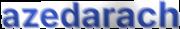
azedarach